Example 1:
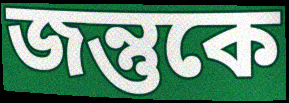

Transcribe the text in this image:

জন্তুকে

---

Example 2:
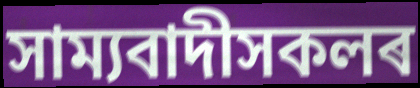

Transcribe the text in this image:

সাম্যবাদীসকলৰ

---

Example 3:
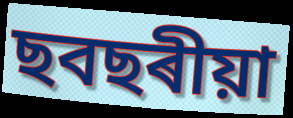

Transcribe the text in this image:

ছবছৰীয়া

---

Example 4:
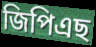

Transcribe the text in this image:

জিপিএছ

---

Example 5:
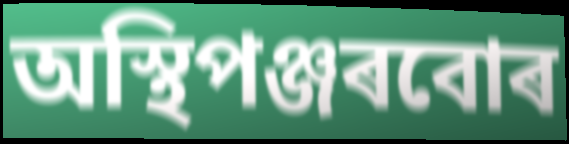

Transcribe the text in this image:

অস্থিপঞ্জৰবোৰ